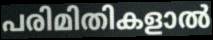
പരിമിതികളാൽ